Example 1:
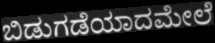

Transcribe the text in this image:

ಬಿಡುಗಡೆಯಾದಮೇಲೆ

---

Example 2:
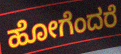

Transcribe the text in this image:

ಹೋಗೆಂದರೆ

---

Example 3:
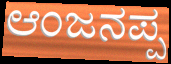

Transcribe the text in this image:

ಆಂಜನಪ್ಪ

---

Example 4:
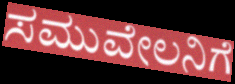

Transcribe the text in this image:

ಸಮುವೇಲನಿಗೆ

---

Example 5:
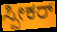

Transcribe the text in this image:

ಸ್ಪೀಕರ್